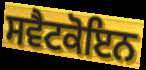
ਸਵੈਟਕੋਇਨ